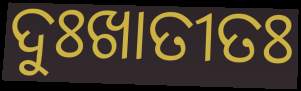
ଦୁଃଖାତୀତଃ